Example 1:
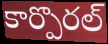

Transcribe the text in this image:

కార్పొరల్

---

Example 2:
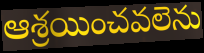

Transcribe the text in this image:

ఆశ్రయించవలెను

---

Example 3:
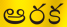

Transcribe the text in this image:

ఆరక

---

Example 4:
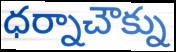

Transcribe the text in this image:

ధర్నాచౌక్ను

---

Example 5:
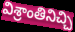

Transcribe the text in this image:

విశ్రాంతినిచ్చి